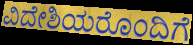
ವಿದೇಶಿಯರೊಂದಿಗೆ